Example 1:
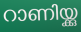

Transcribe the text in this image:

റാണിയ്ക്കു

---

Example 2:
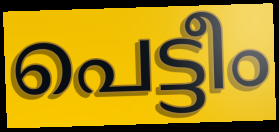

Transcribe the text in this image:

പെട്ടീം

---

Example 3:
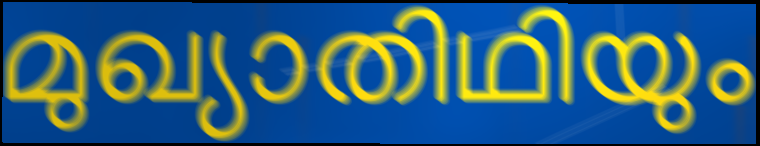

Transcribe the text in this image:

മുഖ്യാതിഥിയും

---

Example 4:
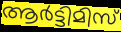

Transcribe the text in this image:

ആർട്ടിമിസ്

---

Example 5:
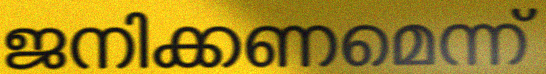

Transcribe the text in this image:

ജനിക്കണമെന്ന്